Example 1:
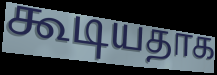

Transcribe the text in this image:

கூடியதாக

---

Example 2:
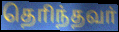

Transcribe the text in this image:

தெரிந்தவர்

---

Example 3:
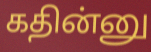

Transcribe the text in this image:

கதின்னு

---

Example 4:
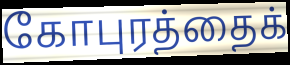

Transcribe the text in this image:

கோபுரத்தைக்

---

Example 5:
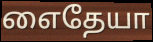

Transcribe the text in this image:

எைதேயா